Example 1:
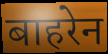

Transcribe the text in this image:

बाहरेन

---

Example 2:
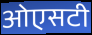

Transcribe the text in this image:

ओएसटी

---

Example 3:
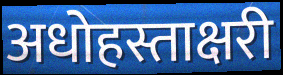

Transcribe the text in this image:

अधोहस्ताक्षरी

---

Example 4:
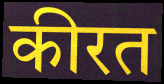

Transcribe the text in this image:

कीरत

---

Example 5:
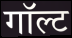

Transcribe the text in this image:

गॉल्ट